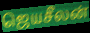
ஜெயசீலன்